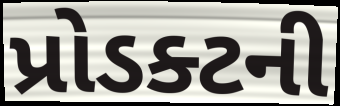
પ્રોડક્ટની